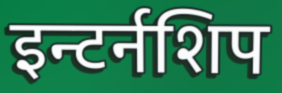
इन्टर्नशिप